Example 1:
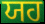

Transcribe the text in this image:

ਯਹ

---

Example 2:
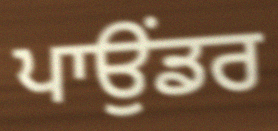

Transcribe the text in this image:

ਪਾਉਂਡਰ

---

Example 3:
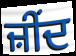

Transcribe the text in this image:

ਜ਼ੀਂਦ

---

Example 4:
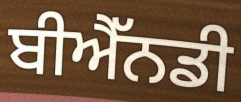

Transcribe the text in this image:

ਬੀਐੱਨਡੀ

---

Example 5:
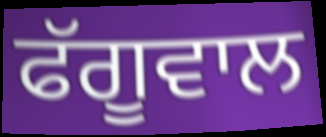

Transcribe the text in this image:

ਫੱਗੂਵਾਲ